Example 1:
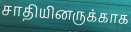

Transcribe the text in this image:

சாதியினருக்காக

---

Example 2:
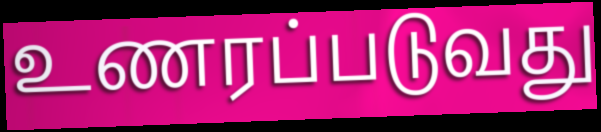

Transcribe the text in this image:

உணரப்படுவது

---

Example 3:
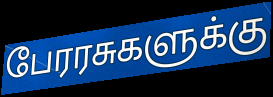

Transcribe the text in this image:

பேரரசுகளுக்கு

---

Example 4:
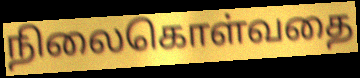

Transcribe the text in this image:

நிலைகொள்வதை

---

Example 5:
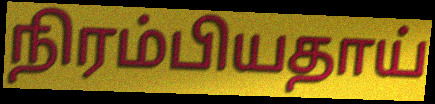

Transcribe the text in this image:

நிரம்பியதாய்